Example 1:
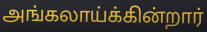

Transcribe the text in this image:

அங்கலாய்க்கின்றார்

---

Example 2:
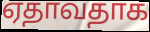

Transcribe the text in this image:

ஏதாவதாக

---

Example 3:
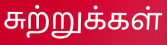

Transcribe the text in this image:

சுற்றுக்கள்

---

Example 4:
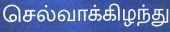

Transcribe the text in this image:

செல்வாக்கிழந்து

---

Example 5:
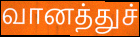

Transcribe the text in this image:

வானத்துச்